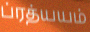
ப்ரத்யயம்